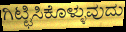
ಗಿಟ್ಟಿಸಿಕೊಳ್ಳುವುದು